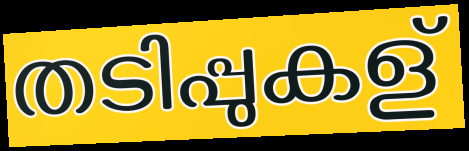
തടിപ്പുകള്